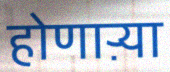
होणाऱ्‍या